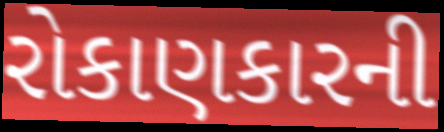
રોકાણકારની